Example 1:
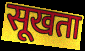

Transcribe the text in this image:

सूखता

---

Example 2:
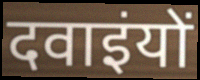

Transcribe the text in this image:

दवाइंयों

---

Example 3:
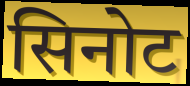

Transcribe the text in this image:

सिनोट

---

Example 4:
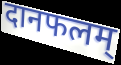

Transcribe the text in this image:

दानफलम्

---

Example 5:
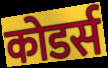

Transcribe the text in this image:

कोडर्स